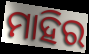
ମାହିର